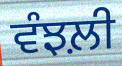
ਵੰਝਲ਼ੀ